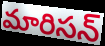
మారిసన్